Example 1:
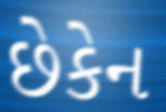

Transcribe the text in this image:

છેકેન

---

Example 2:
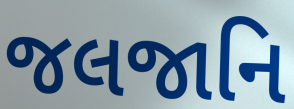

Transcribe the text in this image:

જલજાનિ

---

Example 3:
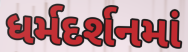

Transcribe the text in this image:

ધર્મદર્શનમાં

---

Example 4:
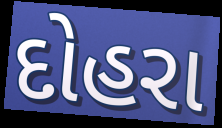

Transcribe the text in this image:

દોહરા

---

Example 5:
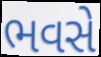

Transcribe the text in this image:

ભવસે